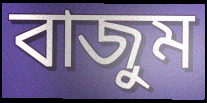
বাজুম